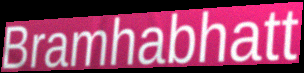
Bramhabhatt